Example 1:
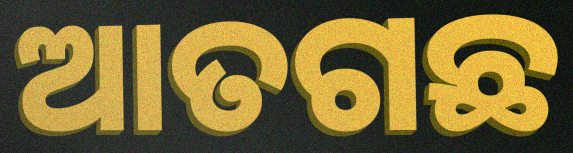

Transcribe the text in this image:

ଆତଗଛ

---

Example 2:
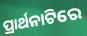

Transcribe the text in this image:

ପ୍ରାର୍ଥନାଟିରେ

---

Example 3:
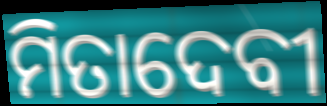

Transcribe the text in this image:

ମିତାଦେବୀ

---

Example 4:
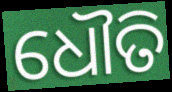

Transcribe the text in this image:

ଧୌତି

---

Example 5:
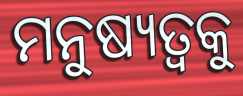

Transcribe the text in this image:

ମନୁଷ୍ୟତ୍ୱକୁ